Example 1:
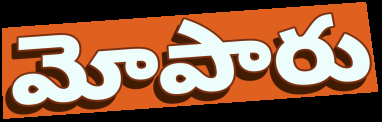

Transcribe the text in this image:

మోపారు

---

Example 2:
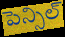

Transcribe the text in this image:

పెన్సిల్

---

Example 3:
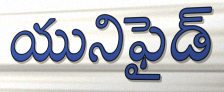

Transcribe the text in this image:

యునిఫైడ్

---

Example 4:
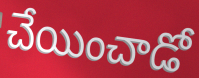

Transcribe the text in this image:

చేయించాడో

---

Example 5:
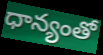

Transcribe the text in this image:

ధాన్యంతో